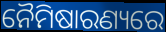
ନୈମିଷାରଣ୍ୟରେ